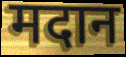
मदान